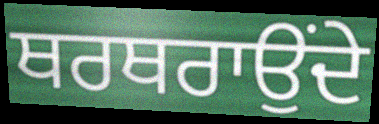
ਥਰਥਰਾਉਂਦੇ